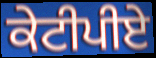
ਕੇਟੀਪੀਏ